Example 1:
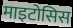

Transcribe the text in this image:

माइटोसिस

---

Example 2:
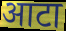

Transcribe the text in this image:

आटा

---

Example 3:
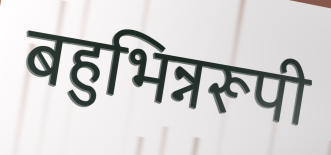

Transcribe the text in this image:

बहुभिन्नरूपी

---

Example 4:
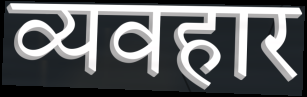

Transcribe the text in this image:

व्यवहार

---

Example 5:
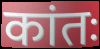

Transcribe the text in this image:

कांतः